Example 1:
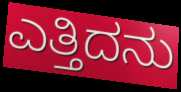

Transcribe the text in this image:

ಎತ್ತಿದನು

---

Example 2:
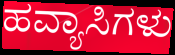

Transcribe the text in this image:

ಹವ್ಯಾಸಿಗಳು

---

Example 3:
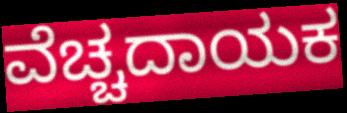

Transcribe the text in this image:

ವೆಚ್ಚದಾಯಕ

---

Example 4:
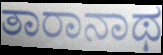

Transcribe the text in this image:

ತಾರಾನಾಥ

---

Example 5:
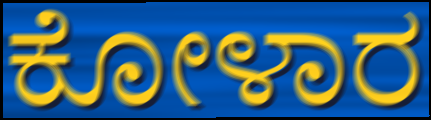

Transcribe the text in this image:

ಕೋಳಾರ